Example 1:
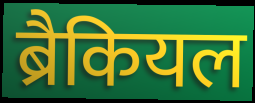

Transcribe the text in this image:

ब्रैकियल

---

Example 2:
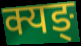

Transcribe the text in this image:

क्यङ्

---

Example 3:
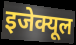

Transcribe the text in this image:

इजेक्यूल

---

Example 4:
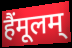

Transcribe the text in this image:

हैंमूलम्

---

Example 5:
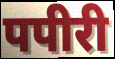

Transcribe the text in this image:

पपीरी